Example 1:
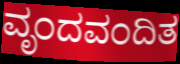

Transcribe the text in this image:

ವೃಂದವಂದಿತ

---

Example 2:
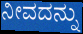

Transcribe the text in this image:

ನೀವದನ್ನು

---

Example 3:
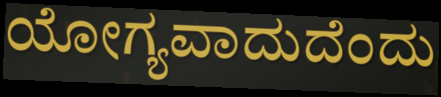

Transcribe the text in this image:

ಯೋಗ್ಯವಾದುದೆಂದು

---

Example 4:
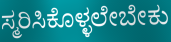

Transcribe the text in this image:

ಸ್ಮರಿಸಿಕೊಳ್ಳಲೇಬೇಕು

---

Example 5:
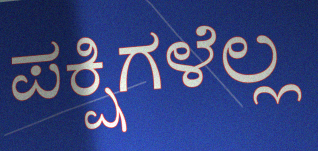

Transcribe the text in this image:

ಪಕ್ಷಿಗಳೆಲ್ಲ